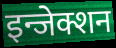
इन्जेक्शन